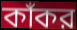
কাঁকর